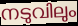
നടുവിലും